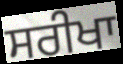
ਸਰੀਖਾ